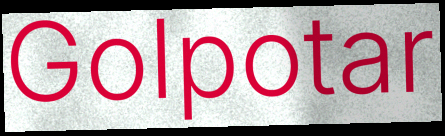
Golpotar